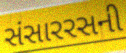
સંસારરસની